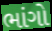
ભાંગો